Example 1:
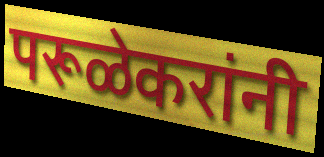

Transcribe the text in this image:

परूळेकरांनी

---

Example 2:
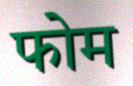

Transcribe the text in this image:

फोम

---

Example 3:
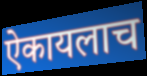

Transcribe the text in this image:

ऐकायलाच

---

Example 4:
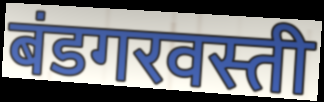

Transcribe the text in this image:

बंडगरवस्ती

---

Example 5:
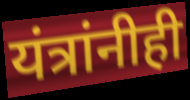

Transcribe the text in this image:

यंत्रांनीही